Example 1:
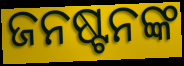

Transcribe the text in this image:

ଜନଷ୍ଟନଙ୍କ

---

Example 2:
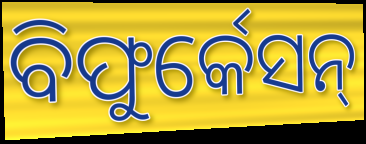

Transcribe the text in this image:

ବିଫୁର୍କେସନ୍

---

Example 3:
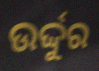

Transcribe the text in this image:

ଉର୍ଦ୍ଦୁର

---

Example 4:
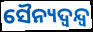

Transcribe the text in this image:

ସୈନ୍ୟଦ୍ୱନ୍ଦ୍ୱ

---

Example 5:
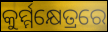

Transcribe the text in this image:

କୁର୍ମ୍ମକ୍ଷେତ୍ରରେ